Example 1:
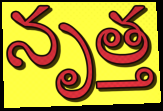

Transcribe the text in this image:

నృత్త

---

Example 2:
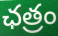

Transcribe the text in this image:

ఛత్రం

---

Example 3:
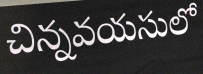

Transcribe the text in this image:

చిన్నవయసులో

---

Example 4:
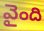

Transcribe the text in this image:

వైంది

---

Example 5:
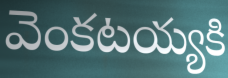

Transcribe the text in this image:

వెంకటయ్యకి